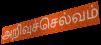
அறிவுச்செல்வம்